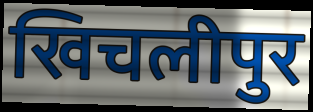
खिचलीपुर